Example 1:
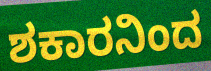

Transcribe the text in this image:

ಶಕಾರನಿಂದ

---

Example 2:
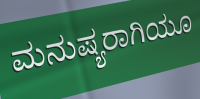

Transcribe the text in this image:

ಮನುಷ್ಯರಾಗಿಯೂ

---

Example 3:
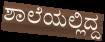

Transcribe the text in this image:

ಶಾಲೆಯಲ್ಲಿದ್ದ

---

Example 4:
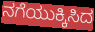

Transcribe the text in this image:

ನಗೆಯುಕ್ಕಿಸಿದ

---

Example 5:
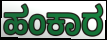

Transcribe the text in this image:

ಹಂಕಾರ